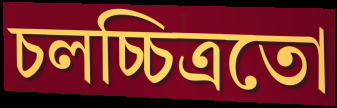
চলচ্চিত্ৰতো